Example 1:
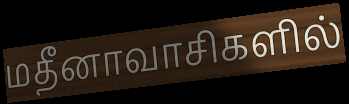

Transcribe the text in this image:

மதீனாவாசிகளில்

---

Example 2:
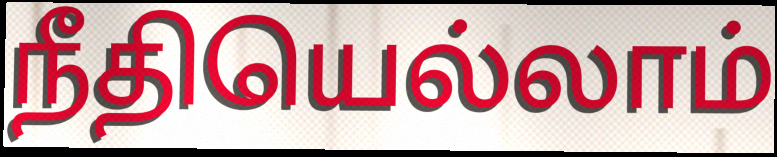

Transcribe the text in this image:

நீதியெல்லாம்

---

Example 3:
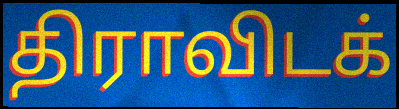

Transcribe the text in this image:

திராவிடக்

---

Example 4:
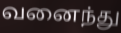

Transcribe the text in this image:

வனைந்து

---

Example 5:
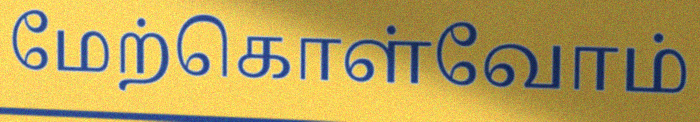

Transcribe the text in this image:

மேற்கொள்வோம்